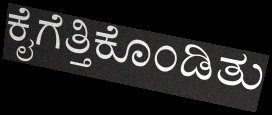
ಕೈಗೆತ್ತಿಕೊಂಡಿತು